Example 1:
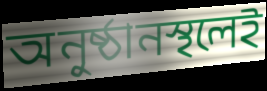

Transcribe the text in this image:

অনুষ্ঠানস্থলেই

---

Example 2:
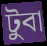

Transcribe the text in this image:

টুবা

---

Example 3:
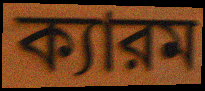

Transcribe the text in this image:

ক্যারম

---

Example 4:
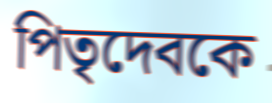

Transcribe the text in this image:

পিতৃদেবকে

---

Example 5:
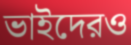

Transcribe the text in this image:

ভাইদেরও